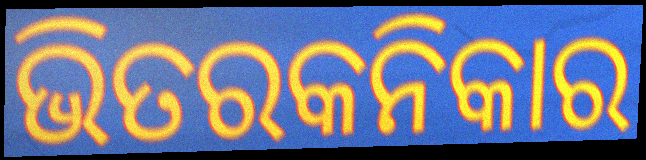
ଭିତରକନିକାର